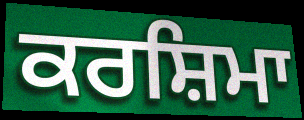
ਕਰਸ਼ਿਮਾ